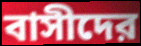
বাসীদের